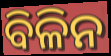
ବିଳିନ